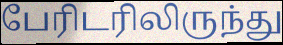
பேரிடரிலிருந்து